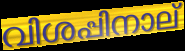
വിശപ്പിനാല്